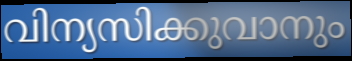
വിന്യസിക്കുവാനും